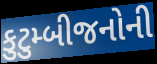
કુટુમ્બીજનોની